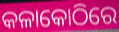
କଳାକୋଠିରେ